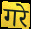
गरे